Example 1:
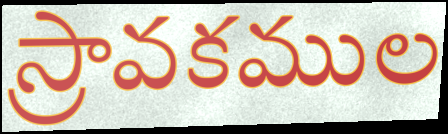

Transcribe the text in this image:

స్రావకముల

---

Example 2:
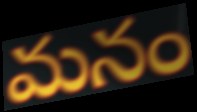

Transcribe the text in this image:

మనం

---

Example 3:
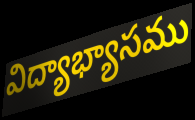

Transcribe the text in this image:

విద్యాభ్యాసము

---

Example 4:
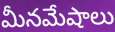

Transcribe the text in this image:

మీనమేషాలు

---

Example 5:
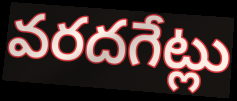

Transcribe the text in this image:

వరదగేట్లు